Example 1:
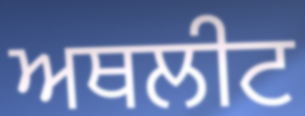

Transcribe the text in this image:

ਅਥਲੀਟ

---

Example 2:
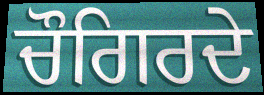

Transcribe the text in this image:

ਚੌਗਿਰਦੇ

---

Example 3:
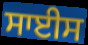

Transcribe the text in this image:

ਸਾਈਸ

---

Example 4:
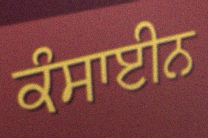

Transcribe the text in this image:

ਕੰਸਾਈਨ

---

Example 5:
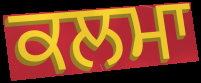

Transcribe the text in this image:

ਕਲਮਾ